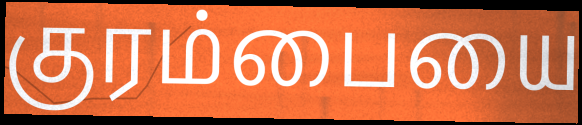
குரம்பையை